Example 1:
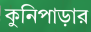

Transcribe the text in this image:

কুনিপাড়ার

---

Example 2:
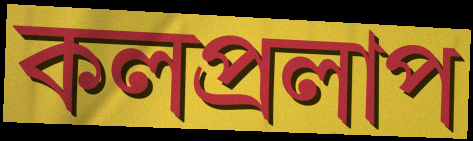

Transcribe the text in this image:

কলপ্রলাপ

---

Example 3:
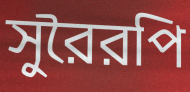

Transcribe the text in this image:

সুরৈরপি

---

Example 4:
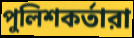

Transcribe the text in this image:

পুলিশকর্তারা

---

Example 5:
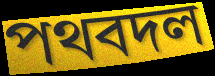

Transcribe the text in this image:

পথবদল